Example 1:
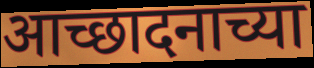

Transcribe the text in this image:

आच्छादनाच्या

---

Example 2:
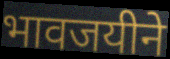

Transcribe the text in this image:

भावजयीने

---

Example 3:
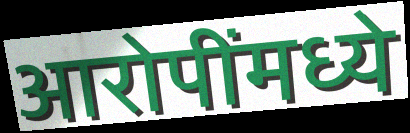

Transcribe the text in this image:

आरोपींमध्ये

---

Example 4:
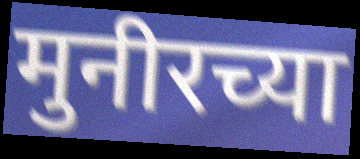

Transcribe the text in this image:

मुनीरच्या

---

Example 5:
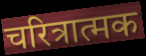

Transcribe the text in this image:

चरित्रात्मक